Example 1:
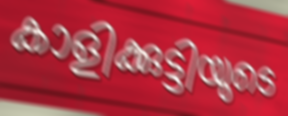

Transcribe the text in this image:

കാളിക്കുട്ടിയുടെ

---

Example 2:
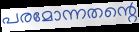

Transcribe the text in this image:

പരമോന്നതന്റെ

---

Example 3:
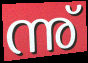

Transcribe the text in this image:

ന്നു്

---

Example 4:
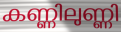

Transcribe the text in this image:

കണ്ണിലുണ്ണി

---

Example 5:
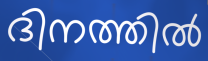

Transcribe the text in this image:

ദിനത്തിൽ